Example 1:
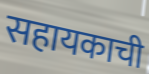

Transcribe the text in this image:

सहायकाची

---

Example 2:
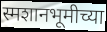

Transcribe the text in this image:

स्मशानभूमीच्या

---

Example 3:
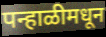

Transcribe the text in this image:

पन्हाळीमधून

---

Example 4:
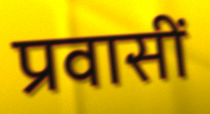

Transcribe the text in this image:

प्रवासीं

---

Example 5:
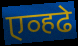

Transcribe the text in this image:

एव्हढे